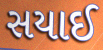
સયાઈ